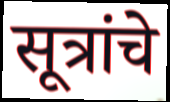
सूत्रांचे